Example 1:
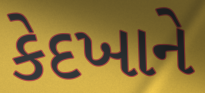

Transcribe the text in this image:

કેદખાને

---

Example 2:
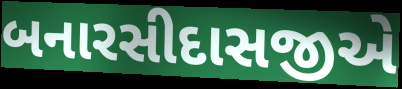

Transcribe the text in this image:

બનારસીદાસજીએ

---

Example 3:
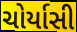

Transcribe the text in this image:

ચોર્યાસી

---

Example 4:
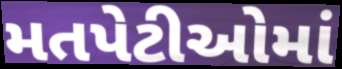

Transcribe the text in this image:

મતપેટીઓમાં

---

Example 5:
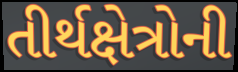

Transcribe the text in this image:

તીર્થક્ષેત્રોની